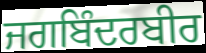
ਜਗਬਿੰਦਰਬੀਰ